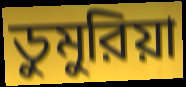
ডুমুরিয়া